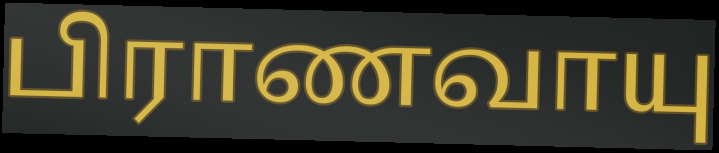
பிராணவாயு